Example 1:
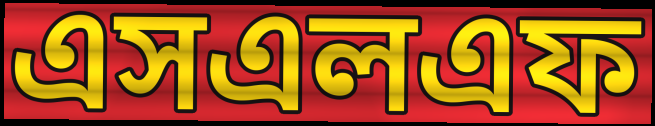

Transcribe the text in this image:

এসএলএফ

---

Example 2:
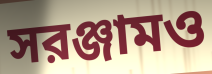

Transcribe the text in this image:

সরঞ্জামও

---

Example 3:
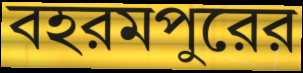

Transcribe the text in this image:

বহরমপুরের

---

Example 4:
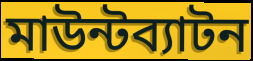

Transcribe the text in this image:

মাউন্টব্যাটন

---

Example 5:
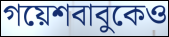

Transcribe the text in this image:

গয়েশবাবুকেও